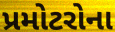
પ્રમોટરોના